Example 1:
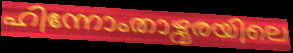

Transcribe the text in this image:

ഹിന്നോംതാഴ്വരയിലെ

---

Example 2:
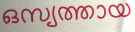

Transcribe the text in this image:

ഒസ്യത്തായ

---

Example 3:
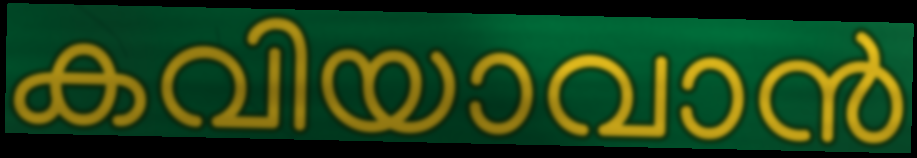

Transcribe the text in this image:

കവിയാവാൻ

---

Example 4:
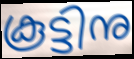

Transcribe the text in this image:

കൂട്ടിനു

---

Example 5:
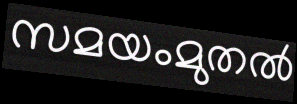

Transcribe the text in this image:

സമയംമുതൽ